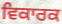
ਵਿਕਾਰਕ